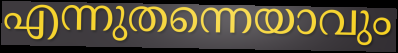
എന്നുതന്നെയാവും